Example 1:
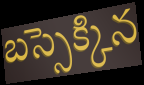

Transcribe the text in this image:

బస్సెక్కిన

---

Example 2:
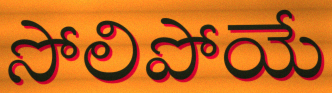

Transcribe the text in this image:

సోలిపోయే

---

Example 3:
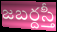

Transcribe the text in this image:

జబర్దస్తీ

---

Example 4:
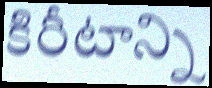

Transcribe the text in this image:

కిరీటాన్ని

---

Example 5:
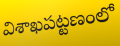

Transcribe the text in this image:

విశాఖపట్టణంలో